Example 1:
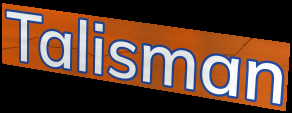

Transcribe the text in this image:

Talisman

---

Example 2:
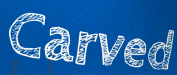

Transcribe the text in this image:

Carved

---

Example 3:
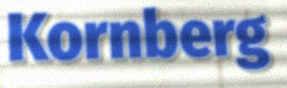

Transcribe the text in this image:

Kornberg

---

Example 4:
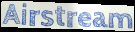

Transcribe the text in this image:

Airstream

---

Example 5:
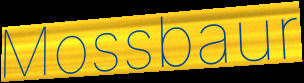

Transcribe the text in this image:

Mossbaur